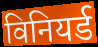
विनियर्ड